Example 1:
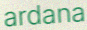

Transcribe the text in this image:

ardana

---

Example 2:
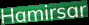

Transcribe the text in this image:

Hamirsar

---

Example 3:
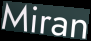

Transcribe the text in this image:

Miran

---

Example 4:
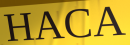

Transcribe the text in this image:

HACA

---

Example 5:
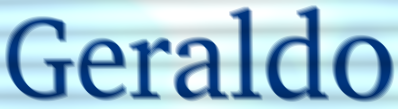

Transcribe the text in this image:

Geraldo